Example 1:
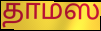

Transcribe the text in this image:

தாமஸ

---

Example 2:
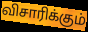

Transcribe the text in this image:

விசாரிக்கும்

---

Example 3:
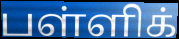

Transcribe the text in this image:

பள்ளிக்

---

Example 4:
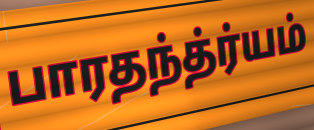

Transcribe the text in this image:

பாரதந்த்ர்யம்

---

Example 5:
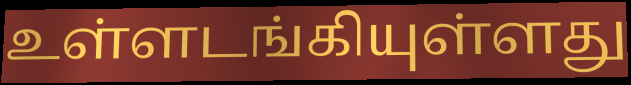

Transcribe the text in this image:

உள்ளடங்கியுள்ளது